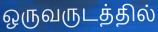
ஒருவருடத்தில்